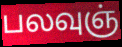
பலவுஞ்